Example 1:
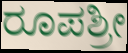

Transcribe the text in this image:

ರೂಪಶ್ರೀ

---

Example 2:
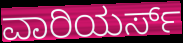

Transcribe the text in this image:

ವಾರಿಯರ್ಸ್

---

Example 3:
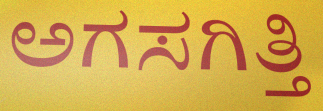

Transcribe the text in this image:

ಅಗಸಗಿತ್ತಿ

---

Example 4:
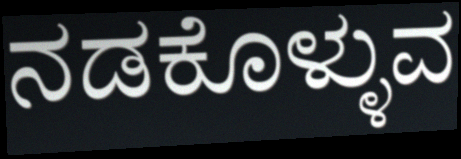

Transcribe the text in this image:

ನಡಕೊಳ್ಳುವ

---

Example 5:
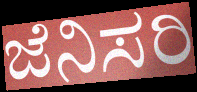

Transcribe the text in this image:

ಜೆನಿಸರಿ